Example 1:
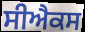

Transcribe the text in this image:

ਸੀਐਕਸ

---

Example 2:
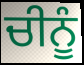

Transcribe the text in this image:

ਚੀਨੂੰ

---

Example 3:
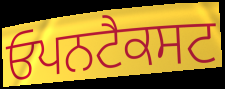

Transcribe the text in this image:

ਓਪਨਟੈਕਸਟ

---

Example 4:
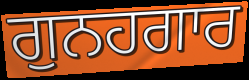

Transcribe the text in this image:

ਗੁਨਹਗਾਰ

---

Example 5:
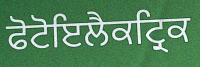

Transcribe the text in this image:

ਫੋਟੋਇਲੈਕਟ੍ਰਿਕ